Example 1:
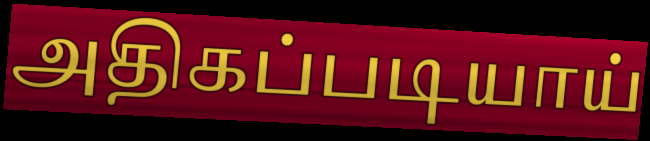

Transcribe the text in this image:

அதிகப்படியாய்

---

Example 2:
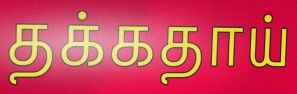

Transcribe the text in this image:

தக்கதாய்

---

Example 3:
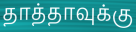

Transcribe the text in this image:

தாத்தாவுக்கு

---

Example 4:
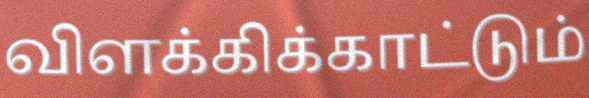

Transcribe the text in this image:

விளக்கிக்காட்டும்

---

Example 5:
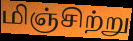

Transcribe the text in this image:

மிஞ்சிற்று